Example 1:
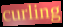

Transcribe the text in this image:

curling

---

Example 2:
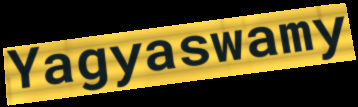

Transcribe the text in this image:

Yagyaswamy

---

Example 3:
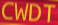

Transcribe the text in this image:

CWDT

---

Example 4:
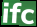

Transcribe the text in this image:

ifc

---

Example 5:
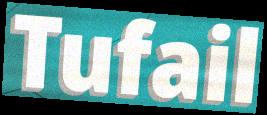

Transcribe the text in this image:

Tufail